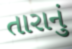
તારાનું